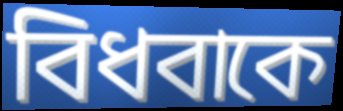
বিধবাকে